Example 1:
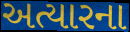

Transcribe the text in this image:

અત્યારના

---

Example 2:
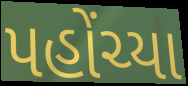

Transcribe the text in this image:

પહોંચ્યા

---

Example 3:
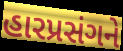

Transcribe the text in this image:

હારપ્રસંગને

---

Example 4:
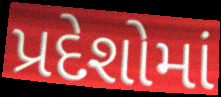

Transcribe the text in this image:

પ્રદેશોમાં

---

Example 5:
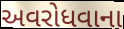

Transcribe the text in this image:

અવરોધવાના